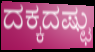
ದಕ್ಕದಷ್ಟು